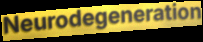
Neurodegeneration